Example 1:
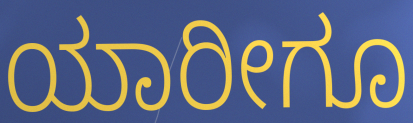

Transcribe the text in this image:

ಯಾರೀಗೂ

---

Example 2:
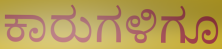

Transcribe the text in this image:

ಕಾರುಗಳಿಗೂ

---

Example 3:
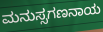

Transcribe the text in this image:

ಮನುಸ್ಸಗಣನಾಯ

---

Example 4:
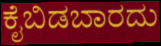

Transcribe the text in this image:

ಕೈಬಿಡಬಾರದು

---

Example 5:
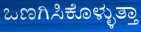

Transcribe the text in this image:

ಒಣಗಿಸಿಕೊಳ್ಳುತ್ತಾ